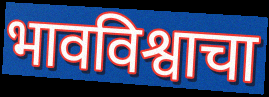
भावविश्वाचा